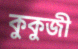
কুকুজী